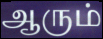
ஆரும்